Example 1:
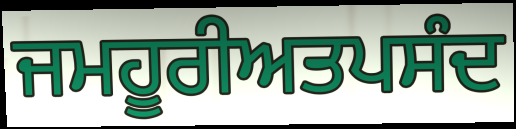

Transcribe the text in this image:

ਜਮਹੂਰੀਅਤਪਸੰਦ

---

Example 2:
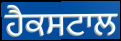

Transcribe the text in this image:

ਹੈਕਸਟਾਲ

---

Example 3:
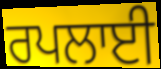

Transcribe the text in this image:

ਰਪਲਾਈ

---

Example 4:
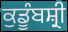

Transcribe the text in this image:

ਕੁਡੂੰਬਸ਼੍ਰੀ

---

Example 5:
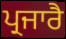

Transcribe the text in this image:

ਪ੍ਰਜਾਰੈ